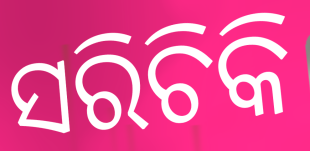
ସରିଚିକି